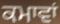
ਕਮਾਵਾਂ